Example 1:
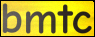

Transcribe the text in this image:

bmtc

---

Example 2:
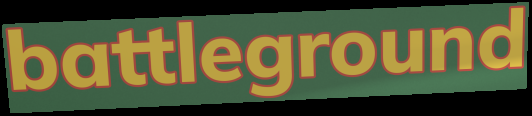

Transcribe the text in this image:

battleground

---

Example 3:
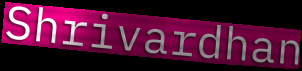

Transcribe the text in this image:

Shrivardhan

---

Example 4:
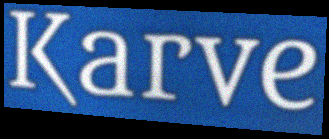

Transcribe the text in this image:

Karve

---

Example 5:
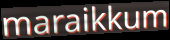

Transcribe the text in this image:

maraikkum